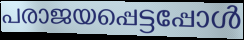
പരാജയപ്പെട്ടപ്പോൾ